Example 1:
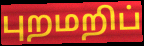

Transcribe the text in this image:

புறமறிப்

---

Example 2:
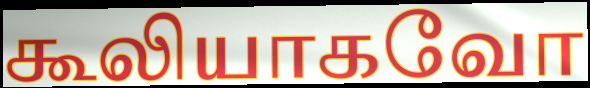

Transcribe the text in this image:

கூலியாகவோ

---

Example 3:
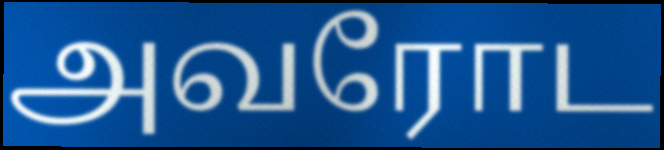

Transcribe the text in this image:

அவரோட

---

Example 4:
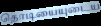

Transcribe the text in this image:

தொடியையுடைய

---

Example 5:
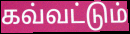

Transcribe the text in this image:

கவ்வட்டும்